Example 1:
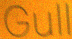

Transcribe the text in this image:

Gull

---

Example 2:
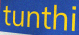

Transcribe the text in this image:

tunthi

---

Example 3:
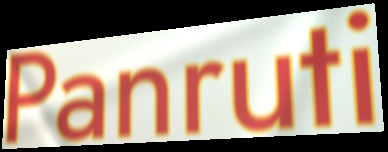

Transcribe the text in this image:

Panruti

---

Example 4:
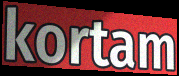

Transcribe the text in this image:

kortam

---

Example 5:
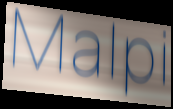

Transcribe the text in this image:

Malpi